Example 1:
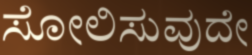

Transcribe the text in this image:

ಸೋಲಿಸುವುದೇ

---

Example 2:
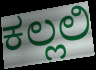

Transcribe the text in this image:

ಕಲ್ಲಲಿ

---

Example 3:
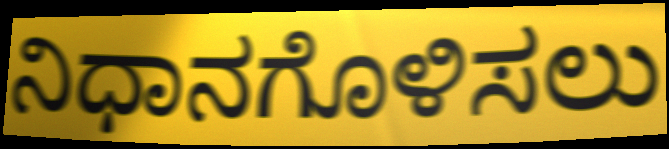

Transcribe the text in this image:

ನಿಧಾನಗೊಳಿಸಲು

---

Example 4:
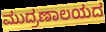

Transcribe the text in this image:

ಮುದ್ರಣಾಲಯದ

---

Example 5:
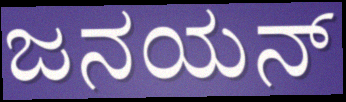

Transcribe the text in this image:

ಜನಯನ್